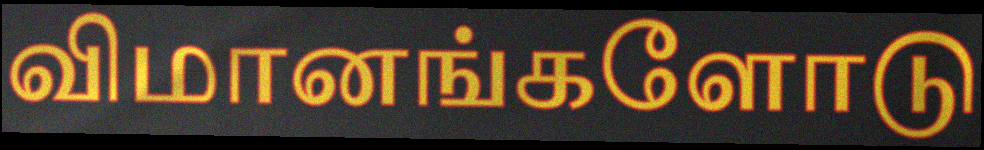
விமானங்களோடு